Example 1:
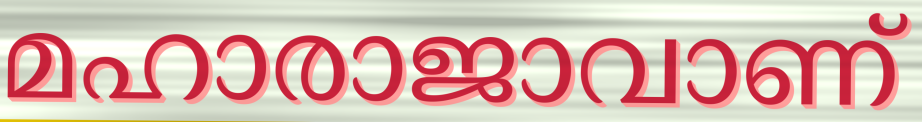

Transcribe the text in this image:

മഹാരാജാവാണ്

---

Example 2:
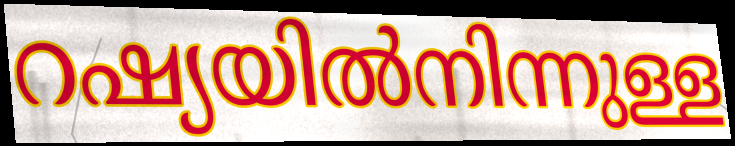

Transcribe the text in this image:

റഷ്യയിൽനിന്നുള്ള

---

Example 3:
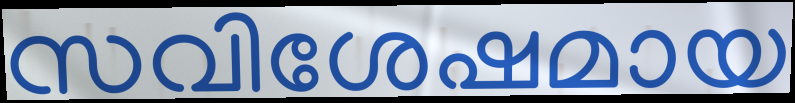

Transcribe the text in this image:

സവിശേഷമായ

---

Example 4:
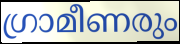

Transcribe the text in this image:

ഗ്രാമീണരും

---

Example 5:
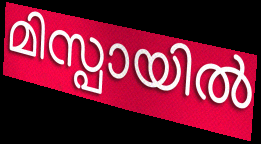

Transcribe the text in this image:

മിസ്പായിൽ